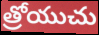
త్రోయుచు